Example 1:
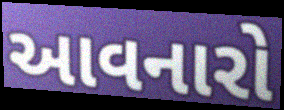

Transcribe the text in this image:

આવનારો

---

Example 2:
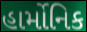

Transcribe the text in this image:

હાર્મોનિક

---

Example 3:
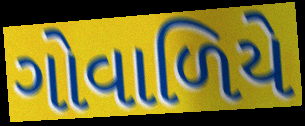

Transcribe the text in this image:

ગોવાળિયે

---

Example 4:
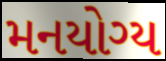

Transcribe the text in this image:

મનયોગ્ય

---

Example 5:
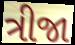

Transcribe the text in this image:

ત્રીજા